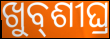
ଖୁବ୍‌ଶୀଘ୍ର